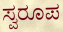
ಸ್ವರೂಪ